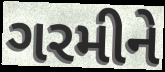
ગરમીને